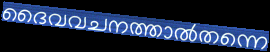
ദൈവവചനത്താൽതന്നെ